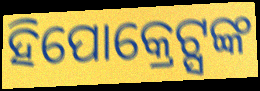
ହିପୋକ୍ରେଟ୍ସଙ୍କ